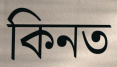
কিনত